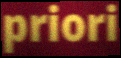
priori